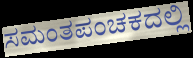
ಸಮಂತಪಂಚಕದಲ್ಲಿ